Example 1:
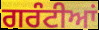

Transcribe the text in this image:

ਗਰੰਟੀਆਂ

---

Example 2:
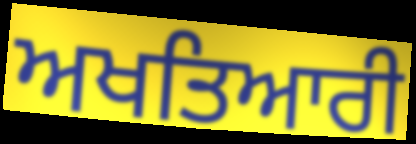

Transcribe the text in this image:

ਅਖਤਿਆਰੀ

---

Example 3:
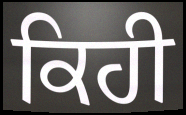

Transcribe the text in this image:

ਕਿਹੀ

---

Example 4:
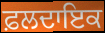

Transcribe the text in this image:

ਫ਼ਲਦਾਇਕ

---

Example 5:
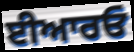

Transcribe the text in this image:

ਈਆਰਓ